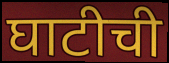
घाटीची